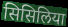
सिसिलिया